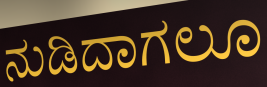
ನುಡಿದಾಗಲೂ